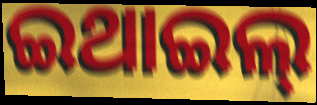
ଇଥାଇଲ୍